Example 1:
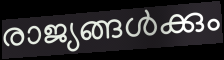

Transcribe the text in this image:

രാജ്യങ്ങൾക്കും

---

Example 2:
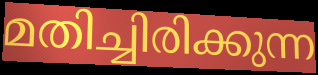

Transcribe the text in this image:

മതിച്ചിരിക്കുന്ന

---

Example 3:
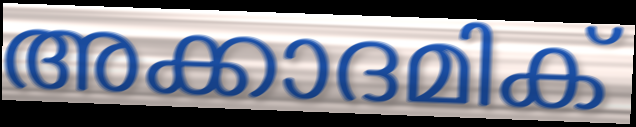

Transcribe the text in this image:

അക്കാദമിക്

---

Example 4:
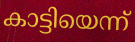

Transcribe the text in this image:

കാട്ടിയെന്ന്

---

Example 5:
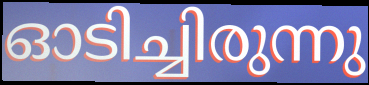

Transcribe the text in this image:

ഓടിച്ചിരുന്നു